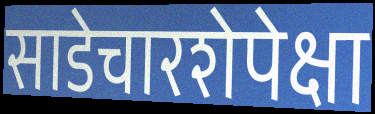
साडेचारशेपेक्षा